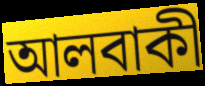
আলবাকী